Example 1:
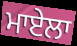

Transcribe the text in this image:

ਮਾਏਲਾ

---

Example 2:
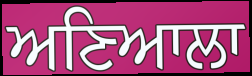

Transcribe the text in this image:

ਅਣਿਆਲਾ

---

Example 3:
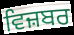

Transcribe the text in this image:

ਵਿਜ਼ਬਰ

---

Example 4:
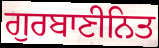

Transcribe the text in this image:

ਗੁਰਬਾਣੀਨਿਤ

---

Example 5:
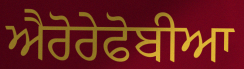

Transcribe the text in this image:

ਐਰੋਰੇਫੋਬੀਆ